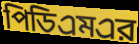
পিডিএমএর